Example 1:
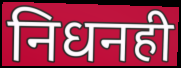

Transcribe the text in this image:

निधनही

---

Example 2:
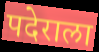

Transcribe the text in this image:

पदेराला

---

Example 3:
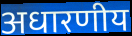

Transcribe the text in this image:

अधारणीय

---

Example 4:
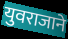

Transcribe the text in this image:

युवराजाने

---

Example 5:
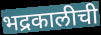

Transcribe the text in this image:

भद्रकालीची